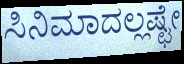
ಸಿನಿಮಾದಲ್ಲಷ್ಟೇ